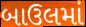
બાઉલમાં